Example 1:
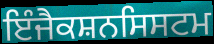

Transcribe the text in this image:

ਇੰਜੈਕਸ਼ਨਸਿਸਟਮ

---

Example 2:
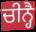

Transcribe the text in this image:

ਚੀਨ੍ਹ੍ਹੈ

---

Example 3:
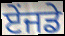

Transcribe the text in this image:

ਏਂਜਡੇ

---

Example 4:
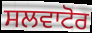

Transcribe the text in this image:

ਸਲਵਾਟੋਰ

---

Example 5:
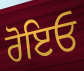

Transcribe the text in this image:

ਰੋਇਓ